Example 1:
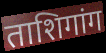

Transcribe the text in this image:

ताशिगांग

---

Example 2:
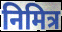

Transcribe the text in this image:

निमित्र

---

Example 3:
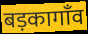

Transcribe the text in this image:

बड़कागाँव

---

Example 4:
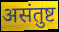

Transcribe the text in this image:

असंतुष्ट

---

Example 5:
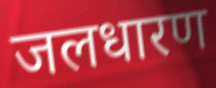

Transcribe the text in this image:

जलधारण